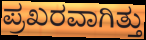
ಪ್ರಖರವಾಗಿತ್ತು